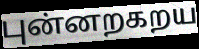
புன்னறகறய